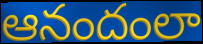
ఆనందంలా